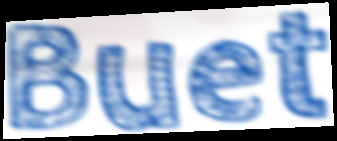
Buet